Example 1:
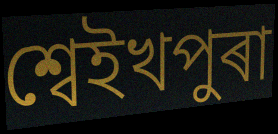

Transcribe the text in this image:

শ্বেইখপুৰা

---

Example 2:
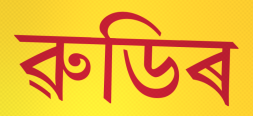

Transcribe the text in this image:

ৱুডিৰ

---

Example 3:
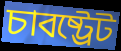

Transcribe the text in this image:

চাবষ্ট্ৰেট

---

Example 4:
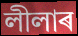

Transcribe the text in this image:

লীলাৰ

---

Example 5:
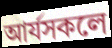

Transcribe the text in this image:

আৰ্যসকলে